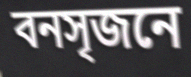
বনসৃজনে